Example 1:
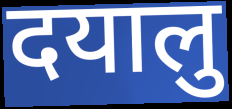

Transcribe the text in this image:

दयालु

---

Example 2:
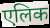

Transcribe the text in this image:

एलिक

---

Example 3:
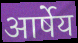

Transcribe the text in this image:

आर्षेय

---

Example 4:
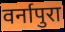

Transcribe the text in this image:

वर्नापुरा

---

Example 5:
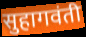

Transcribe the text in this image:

सुहागवंती